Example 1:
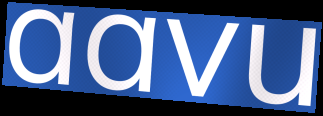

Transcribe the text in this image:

aavu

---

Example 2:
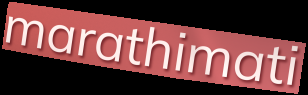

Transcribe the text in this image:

marathimati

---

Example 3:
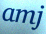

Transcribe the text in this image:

amj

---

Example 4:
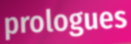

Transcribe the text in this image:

prologues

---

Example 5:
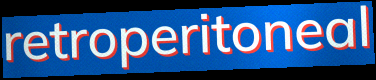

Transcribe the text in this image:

retroperitoneal